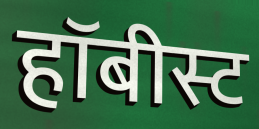
हॉबीस्ट